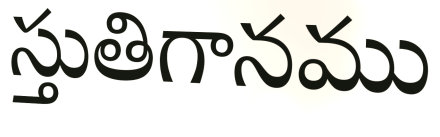
స్తుతిగానము